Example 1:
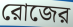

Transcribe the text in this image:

রোজের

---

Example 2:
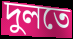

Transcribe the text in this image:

দুলতে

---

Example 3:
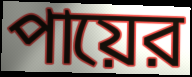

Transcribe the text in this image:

পায়ের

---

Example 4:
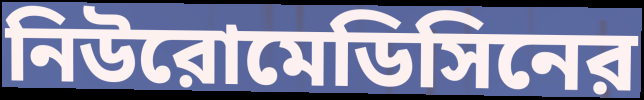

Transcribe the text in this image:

নিউরোমেডিসিনের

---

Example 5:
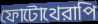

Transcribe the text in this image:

ফোটোথেরাপি